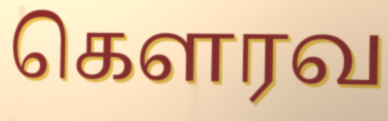
கெளரவ